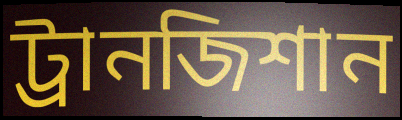
ট্রানজিশান